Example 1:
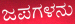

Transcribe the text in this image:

ಜಪಗಳನು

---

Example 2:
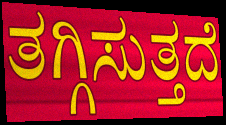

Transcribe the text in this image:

ತಗ್ಗಿಸುತ್ತದೆ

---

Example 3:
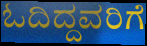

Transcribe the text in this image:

ಓದಿದ್ದವರಿಗೆ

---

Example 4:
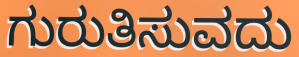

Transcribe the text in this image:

ಗುರುತಿಸುವದು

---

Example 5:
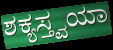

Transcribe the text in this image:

ಶಕ್ಯಸ್ತ್ವಯಾ